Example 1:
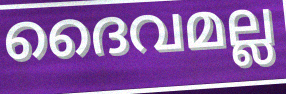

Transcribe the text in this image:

ദൈവമല്ല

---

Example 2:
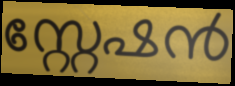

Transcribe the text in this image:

സ്റ്റേഷൻ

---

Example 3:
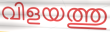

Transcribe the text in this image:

വിളയത്തു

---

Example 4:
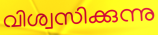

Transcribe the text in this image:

വിശ്വസിക്കുന്നു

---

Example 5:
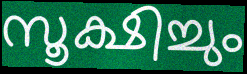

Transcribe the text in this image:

സൂക്ഷിച്ചും